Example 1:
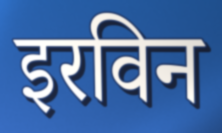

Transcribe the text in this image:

इरविन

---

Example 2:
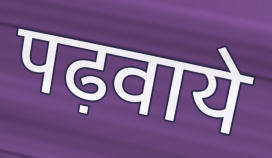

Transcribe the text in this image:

पढ़वाये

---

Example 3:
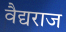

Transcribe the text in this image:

वैद्यराज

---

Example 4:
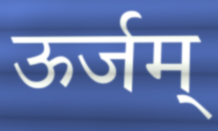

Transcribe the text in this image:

ऊर्जम्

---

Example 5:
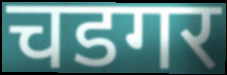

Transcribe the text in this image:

चडगर